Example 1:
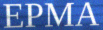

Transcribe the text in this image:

EPMA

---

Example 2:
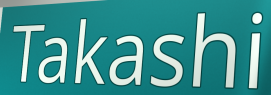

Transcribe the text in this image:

Takashi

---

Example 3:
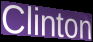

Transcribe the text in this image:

Clinton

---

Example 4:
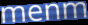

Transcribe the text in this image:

menm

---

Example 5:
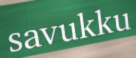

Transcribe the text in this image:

savukku